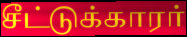
சீட்டுக்காரர்